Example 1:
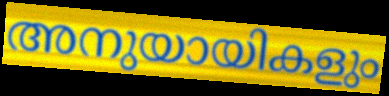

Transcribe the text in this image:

അനുയായികളും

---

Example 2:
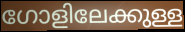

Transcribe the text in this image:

ഗോളിലേക്കുള്ള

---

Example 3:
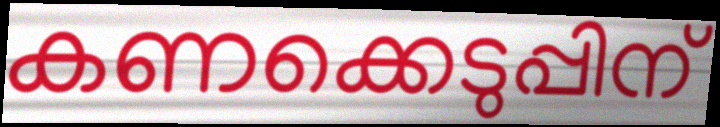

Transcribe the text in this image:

കണക്കെടുപ്പിന്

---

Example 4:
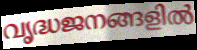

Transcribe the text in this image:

വൃദ്ധജനങ്ങളിൽ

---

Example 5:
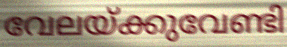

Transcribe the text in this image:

വേലയ്ക്കുവേണ്ടി